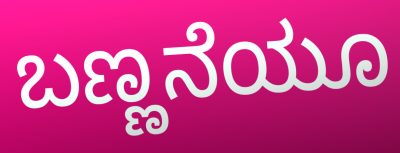
ಬಣ್ಣನೆಯೂ